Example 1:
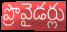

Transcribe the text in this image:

ప్రొవైడర్లు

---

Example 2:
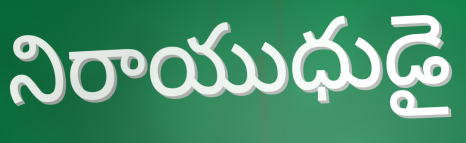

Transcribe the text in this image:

నిరాయుధుడై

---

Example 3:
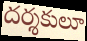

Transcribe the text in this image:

దర్శకులూ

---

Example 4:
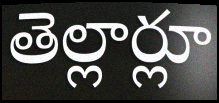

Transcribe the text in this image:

తెల్లార్లూ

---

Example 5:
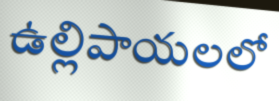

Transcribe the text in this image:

ఉల్లిపాయలలో